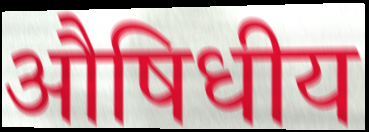
औषिधीय